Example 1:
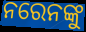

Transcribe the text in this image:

ନରେନଙ୍କୁ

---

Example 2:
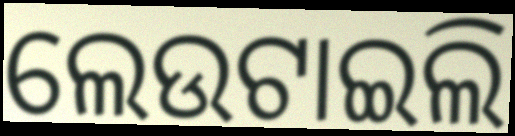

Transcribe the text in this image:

ଲେଉଟାଇଲି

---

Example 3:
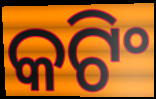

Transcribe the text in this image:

କଟିଂ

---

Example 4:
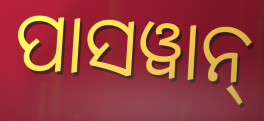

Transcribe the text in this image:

ପାସୱାନ୍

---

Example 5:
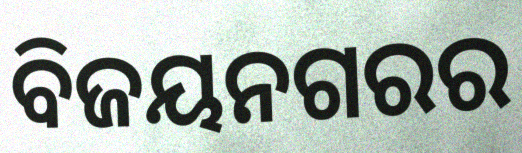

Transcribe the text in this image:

ବିଜୟନଗରର